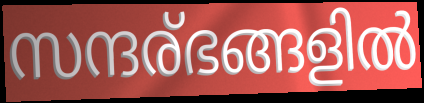
സന്ദര്ഭങ്ങളിൽ